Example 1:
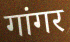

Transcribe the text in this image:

गांगर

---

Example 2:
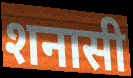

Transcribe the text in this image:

शनासी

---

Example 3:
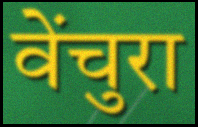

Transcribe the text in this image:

वेंचुरा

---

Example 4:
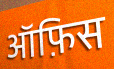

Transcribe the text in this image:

ऑफ़िस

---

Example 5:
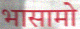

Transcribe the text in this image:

भासामो